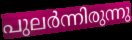
പുലർന്നിരുന്നു